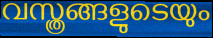
വസ്ത്രങ്ങളുടെയും